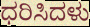
ಧರಿಸಿದಳು